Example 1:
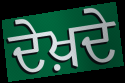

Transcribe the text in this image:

ਦੇਖ਼ਦੇ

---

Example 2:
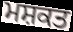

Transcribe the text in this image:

ਮਸ਼ਕਤ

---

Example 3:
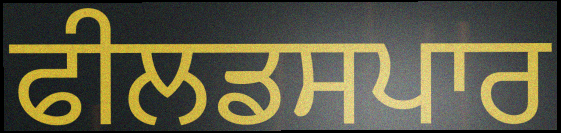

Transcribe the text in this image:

ਫੀਲਡਸਪਾਰ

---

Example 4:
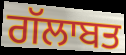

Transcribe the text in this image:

ਗੱਲਾਬਤ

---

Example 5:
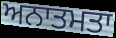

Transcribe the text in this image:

ਅਨਾਤਮਤਾ